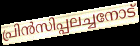
പ്രിൻസിപ്പലച്ചനോട്